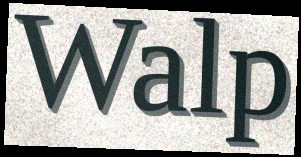
Walp